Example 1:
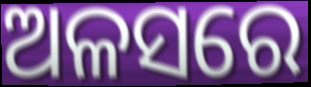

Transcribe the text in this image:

ଅଳସରେ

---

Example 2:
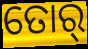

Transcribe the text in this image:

ତୋର୍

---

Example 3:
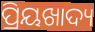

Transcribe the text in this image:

ପ୍ରିୟଖାଦ୍ୟ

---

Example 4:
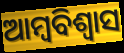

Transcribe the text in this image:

ଆମ୍ବବିଶ୍ଵାସ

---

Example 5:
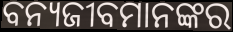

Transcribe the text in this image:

ବନ୍ୟଜୀବମାନଙ୍କର